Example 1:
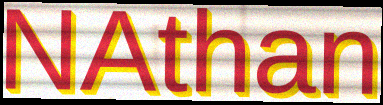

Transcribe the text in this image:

NAthan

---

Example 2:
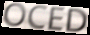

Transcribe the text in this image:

OCED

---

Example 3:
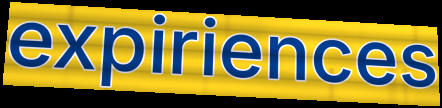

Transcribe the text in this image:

expiriences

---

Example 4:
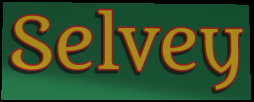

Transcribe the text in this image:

Selvey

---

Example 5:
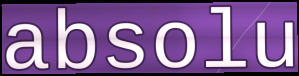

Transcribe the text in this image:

absolu